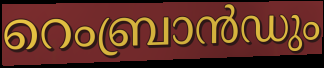
റെംബ്രാൻഡും